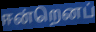
ஈன்றெனப்